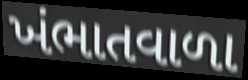
ખંભાતવાળા